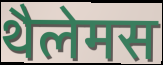
थैलेमस